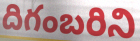
దిగంబరిని